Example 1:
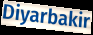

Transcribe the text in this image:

Diyarbakir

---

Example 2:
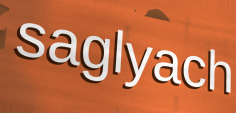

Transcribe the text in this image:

saglyach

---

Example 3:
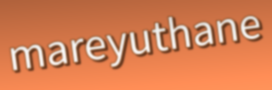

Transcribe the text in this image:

mareyuthane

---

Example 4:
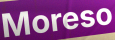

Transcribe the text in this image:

Moreso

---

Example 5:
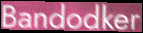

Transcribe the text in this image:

Bandodker